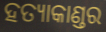
ହତ୍ୟାକାଣ୍ଡର